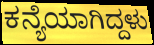
ಕನ್ಯೆಯಾಗಿದ್ದಳು